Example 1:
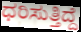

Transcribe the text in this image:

ಧರಿಸುತ್ತಿದ್ದೆ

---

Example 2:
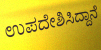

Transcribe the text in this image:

ಉಪದೇಶಿಸಿದ್ದಾನೆ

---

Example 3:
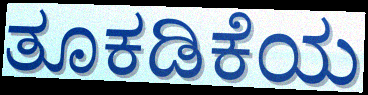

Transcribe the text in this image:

ತೂಕಡಿಕೆಯ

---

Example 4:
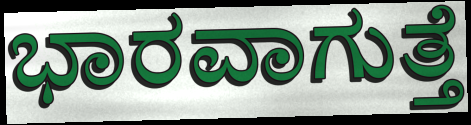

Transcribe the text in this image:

ಭಾರವಾಗುತ್ತೆ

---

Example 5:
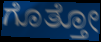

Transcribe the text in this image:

ಗೊತ್ತೋ